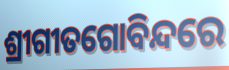
ଶ୍ରୀଗୀତଗୋବିନ୍ଦରେ